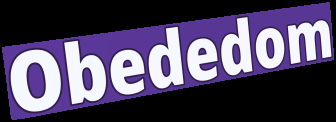
Obededom